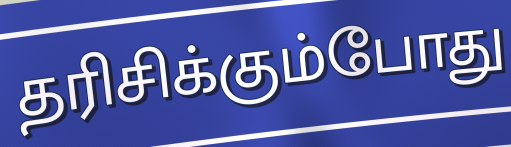
தரிசிக்கும்போது